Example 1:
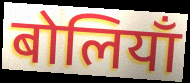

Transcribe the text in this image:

बोलियाँ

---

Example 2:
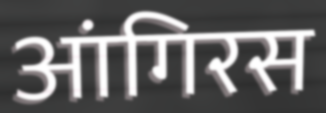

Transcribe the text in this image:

आंगिरस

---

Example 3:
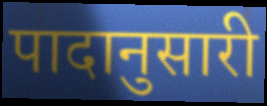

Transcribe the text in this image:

पादानुसारी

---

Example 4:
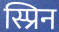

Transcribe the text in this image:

स्प्रिन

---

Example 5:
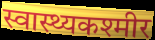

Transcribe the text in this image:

स्वास्थ्यकश्‍मीर